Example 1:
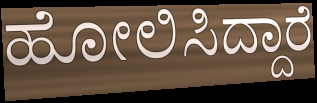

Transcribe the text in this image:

ಹೋಲಿಸಿದ್ದಾರೆ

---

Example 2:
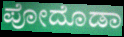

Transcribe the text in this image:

ಪೋದೊಡಾ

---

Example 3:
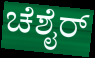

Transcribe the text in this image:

ಚೆಶೈರ್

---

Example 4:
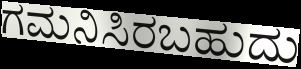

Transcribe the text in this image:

ಗಮನಿಸಿರಬಹುದು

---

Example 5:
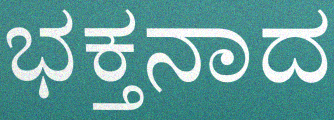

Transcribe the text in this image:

ಭಕ್ತನಾದ